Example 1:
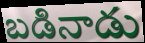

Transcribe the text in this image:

బడినాడు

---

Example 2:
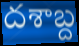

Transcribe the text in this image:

దశాబ్ద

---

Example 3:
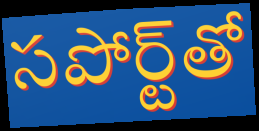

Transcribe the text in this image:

సపోర్ట్‌తో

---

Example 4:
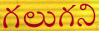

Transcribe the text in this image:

గలుగని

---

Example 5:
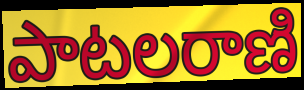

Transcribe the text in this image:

పాటలరాణి